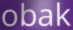
obak